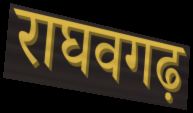
राघवगढ़